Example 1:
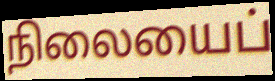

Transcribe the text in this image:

நிலையைப்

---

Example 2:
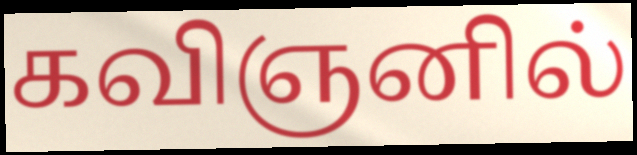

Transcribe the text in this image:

கவிஞனில்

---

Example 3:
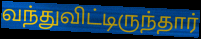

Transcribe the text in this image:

வந்துவிட்டிருந்தார்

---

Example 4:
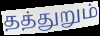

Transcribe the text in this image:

தத்துறும்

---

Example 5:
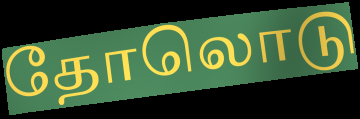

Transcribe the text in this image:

தோலொடு